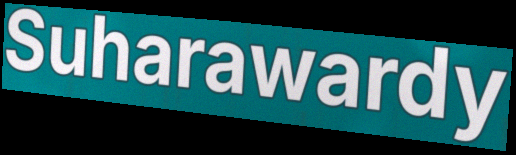
Suharawardy